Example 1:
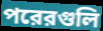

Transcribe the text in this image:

পরেরগুলি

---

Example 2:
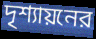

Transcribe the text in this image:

দৃশ্যায়নের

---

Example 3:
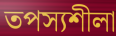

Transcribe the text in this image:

তপস্যশীলা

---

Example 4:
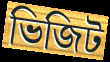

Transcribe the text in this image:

ভিজিট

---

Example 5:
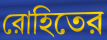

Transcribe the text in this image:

রোহিতের